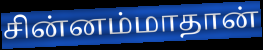
சின்னம்மாதான்